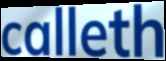
calleth